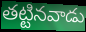
తట్టినవాడు